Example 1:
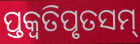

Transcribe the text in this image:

ପ୍ତକ୍ଵତିପୃତସମ୍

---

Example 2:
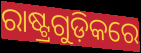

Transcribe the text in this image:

ରାଷ୍ଟ୍ରଗୁଡ଼ିକରେ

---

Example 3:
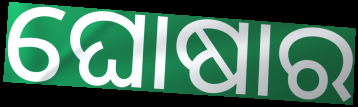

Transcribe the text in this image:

ଘୋଷାର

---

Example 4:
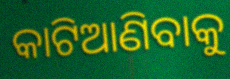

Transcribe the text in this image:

କାଟିଆଣିବାକୁ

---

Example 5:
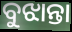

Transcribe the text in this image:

ବୁଝାନ୍ତା